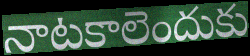
నాటకాలెందుకు